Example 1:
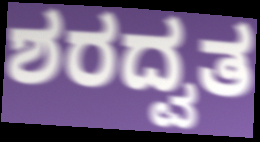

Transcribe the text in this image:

ಶರದ್ವತ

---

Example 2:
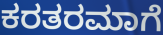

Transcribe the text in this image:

ಕರತರಮಾಗೆ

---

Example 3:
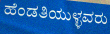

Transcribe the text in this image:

ಹೆಂಡತಿಯುಳ್ಳವರು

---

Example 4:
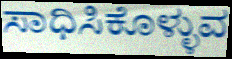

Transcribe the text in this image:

ಸಾಧಿಸಿಕೊಳ್ಳುವ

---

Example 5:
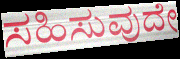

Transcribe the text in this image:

ಸಹಿಸುವುದೇ